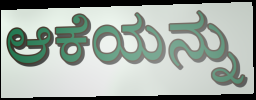
ಆಕೆಯನ್ನು